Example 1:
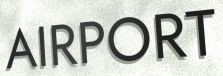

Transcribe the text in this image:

AIRPORT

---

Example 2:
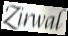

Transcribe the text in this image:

Zirwal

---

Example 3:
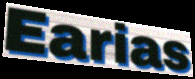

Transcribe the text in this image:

Earias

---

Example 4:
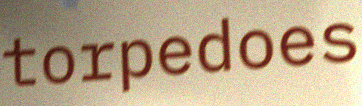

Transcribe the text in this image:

torpedoes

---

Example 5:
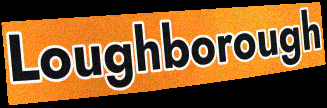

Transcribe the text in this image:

Loughborough